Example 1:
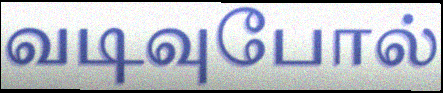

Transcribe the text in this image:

வடிவுபோல்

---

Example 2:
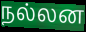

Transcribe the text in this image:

நல்லன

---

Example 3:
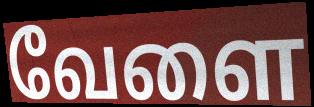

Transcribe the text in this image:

வேளை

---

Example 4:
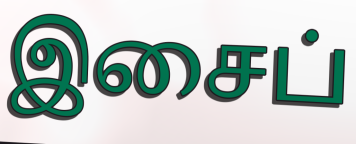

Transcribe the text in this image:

இசைப்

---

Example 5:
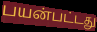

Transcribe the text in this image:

பயன்பட்டது